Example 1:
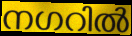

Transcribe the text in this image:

നഗറിൽ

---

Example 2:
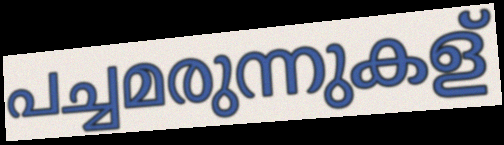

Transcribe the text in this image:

പച്ചമരുന്നുകള്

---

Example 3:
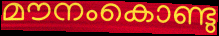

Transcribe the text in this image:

മൗനംകൊണ്ടു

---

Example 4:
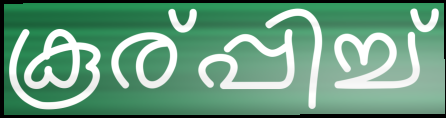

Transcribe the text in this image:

കൂര്പ്പിച്ച്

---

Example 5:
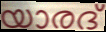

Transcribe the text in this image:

യാരദ്